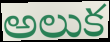
అలుక